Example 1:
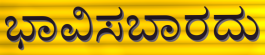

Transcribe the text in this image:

ಭಾವಿಸಬಾರದು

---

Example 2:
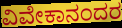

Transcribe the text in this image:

ವಿವೇಕಾನಂದರ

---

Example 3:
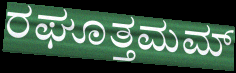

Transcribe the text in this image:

ರಘೂತ್ತಮಮ್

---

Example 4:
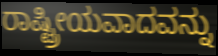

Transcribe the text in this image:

ರಾಷ್ಟ್ರೀಯವಾದವನ್ನು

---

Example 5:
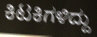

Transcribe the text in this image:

ಕಿಟಕಿಗಳಿದ್ದು